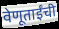
वेणूताईंची